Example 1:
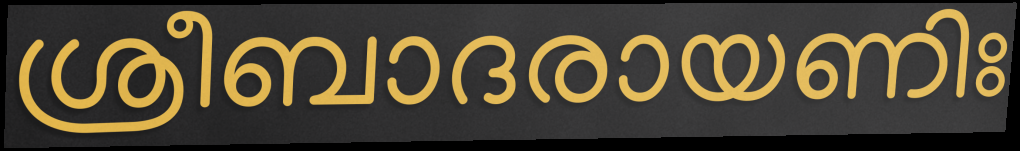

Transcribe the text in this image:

ശ്രീബാദരായണിഃ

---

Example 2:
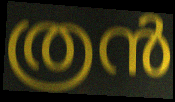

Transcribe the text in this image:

ത്രൻ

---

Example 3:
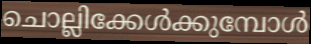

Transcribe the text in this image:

ചൊല്ലിക്കേൾക്കുമ്പോൾ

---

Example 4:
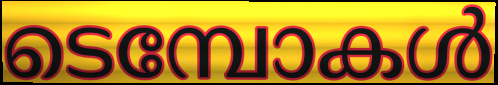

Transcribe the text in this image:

ടെമ്പോകൾ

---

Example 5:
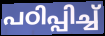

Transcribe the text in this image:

പഠിപ്പിച്ച്